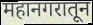
महानगरातून